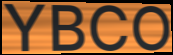
YBCO